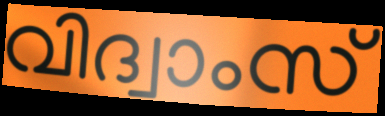
വിദ്വാംസ്